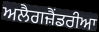
ਅਲੈਗਜ਼ੈਂਡਰੀਆ